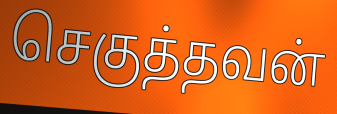
செகுத்தவன்